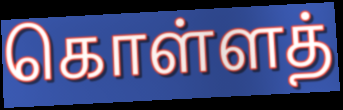
கொள்ளத்